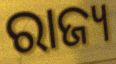
ରାଜ୍ୟ